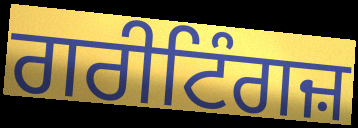
ਗਰੀਟਿੰਗਜ਼